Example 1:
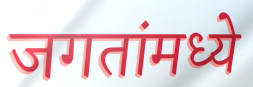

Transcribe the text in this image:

जगतांमध्ये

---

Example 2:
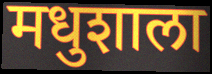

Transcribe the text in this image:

मधुशाला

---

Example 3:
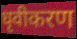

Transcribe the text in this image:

धृवीकरण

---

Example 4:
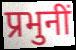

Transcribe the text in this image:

प्रभुनीं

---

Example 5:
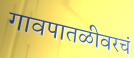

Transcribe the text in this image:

गावपातळीवरचं